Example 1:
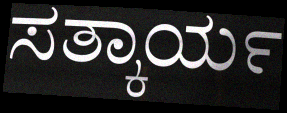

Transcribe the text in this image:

ಸತ್ಕಾರ್ಯ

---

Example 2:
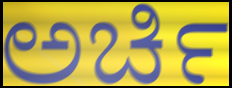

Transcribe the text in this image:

ಅರ್ಚಿ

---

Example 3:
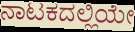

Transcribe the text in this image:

ನಾಟಕದಲ್ಲಿಯೇ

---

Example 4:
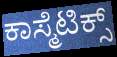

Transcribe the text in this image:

ಕಾಸ್ಮೆಟಿಕ್ಸ್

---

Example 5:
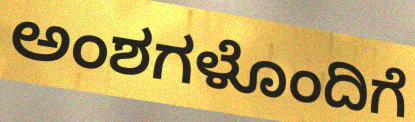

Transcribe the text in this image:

ಅಂಶಗಳೊಂದಿಗೆ